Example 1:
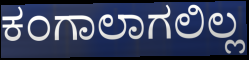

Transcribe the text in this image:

ಕಂಗಾಲಾಗಲಿಲ್ಲ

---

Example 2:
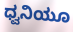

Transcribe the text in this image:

ಧ್ವನಿಯೂ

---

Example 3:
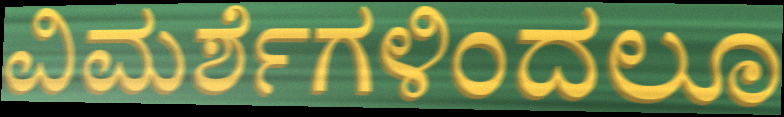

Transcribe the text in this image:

ವಿಮರ್ಶೆಗಳಿಂದಲೂ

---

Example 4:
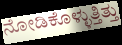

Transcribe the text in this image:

ನೋಡಿಕೊಳ್ಳುತ್ತಿತ್ತು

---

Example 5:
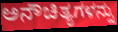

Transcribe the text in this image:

ಅನೌಚಿತ್ಯಗಳನ್ನು